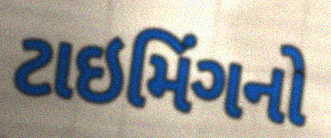
ટાઇમિંગનો